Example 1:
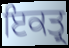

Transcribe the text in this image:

ਇਕਤ੍ਰ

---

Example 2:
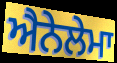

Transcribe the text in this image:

ਐਨੇਲੇਮਾ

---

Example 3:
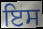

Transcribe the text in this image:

ਇਸ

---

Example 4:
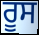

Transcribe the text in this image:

ਰੂਸ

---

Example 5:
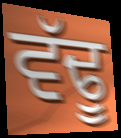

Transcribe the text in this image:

ਵੱਢੂ